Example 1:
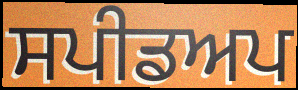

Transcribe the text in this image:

ਸਪੀਡਅਪ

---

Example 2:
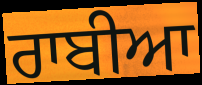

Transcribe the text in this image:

ਰਾਬੀਆ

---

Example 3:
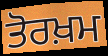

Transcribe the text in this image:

ਤੋਰਖ਼ਮ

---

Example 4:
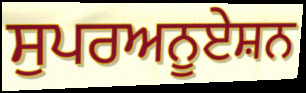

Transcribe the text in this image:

ਸੁਪਰਅਨੂਏਸ਼ਨ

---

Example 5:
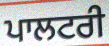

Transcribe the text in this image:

ਪਾਲਟਰੀ